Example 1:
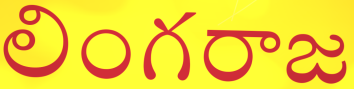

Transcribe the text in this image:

లింగరాజ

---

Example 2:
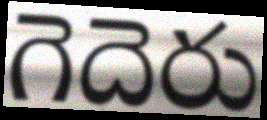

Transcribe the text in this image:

గెదెరు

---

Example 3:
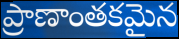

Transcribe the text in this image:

ప్రాణాంతకమైన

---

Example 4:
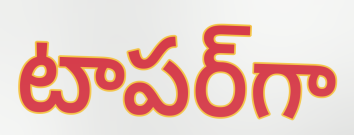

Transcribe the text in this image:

టాపర్‌గా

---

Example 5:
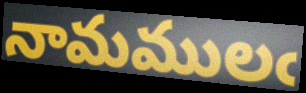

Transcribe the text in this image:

నామములఁ